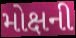
મોક્ષની